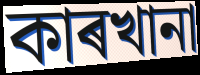
কাৰখানা